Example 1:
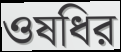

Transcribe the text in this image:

ওষধির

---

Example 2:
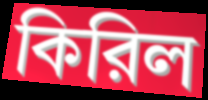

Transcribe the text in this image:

কিরিল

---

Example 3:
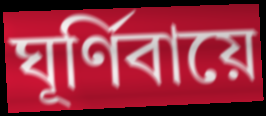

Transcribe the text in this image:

ঘূর্ণিবায়ে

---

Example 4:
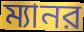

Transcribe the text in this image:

ম্যানর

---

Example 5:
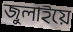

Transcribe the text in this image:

জুলাইয়ে